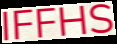
IFFHS